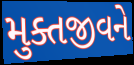
મુક્તજીવને